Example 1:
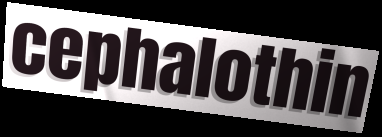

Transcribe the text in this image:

cephalothin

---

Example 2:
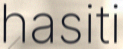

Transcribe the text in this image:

hasiti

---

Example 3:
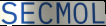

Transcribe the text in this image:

SECMOL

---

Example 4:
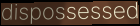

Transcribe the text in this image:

dispossessed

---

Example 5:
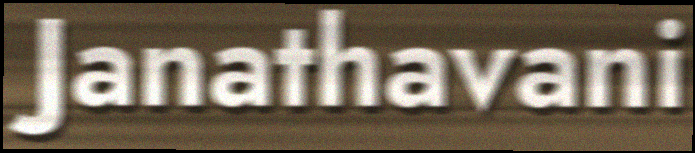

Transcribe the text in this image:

Janathavani